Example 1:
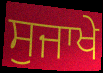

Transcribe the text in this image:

ਸੁਜਾਖੇ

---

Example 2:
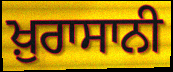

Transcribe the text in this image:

ਖ਼ੁਰਾਸਾਨੀ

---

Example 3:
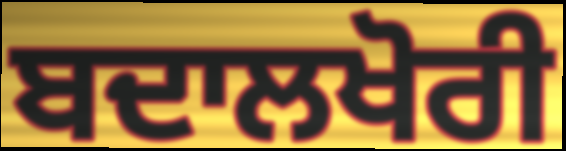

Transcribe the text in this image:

ਬਦਾਲਖੋਰੀ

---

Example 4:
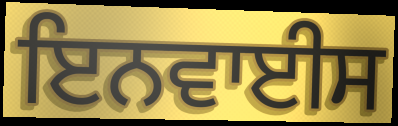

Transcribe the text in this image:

ਇਨਵਾਈਸ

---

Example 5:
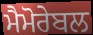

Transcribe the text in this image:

ਮੈਮੋਰੇਬਲ